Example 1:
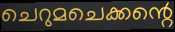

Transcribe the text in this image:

ചെറുമചെക്കന്റെ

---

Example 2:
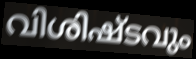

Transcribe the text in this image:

വിശിഷ്ടവും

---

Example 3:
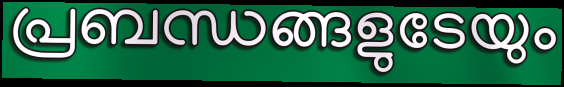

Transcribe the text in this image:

പ്രബന്ധങ്ങളുടേയും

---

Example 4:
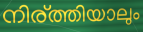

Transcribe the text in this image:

നിര്ത്തിയാലും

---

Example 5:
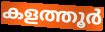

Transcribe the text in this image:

കളത്തൂർ